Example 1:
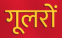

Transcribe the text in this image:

गूलरों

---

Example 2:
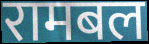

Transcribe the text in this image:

रामबल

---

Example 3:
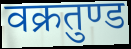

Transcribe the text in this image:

वक्रतुण्ड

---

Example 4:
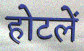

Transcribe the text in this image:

होटलें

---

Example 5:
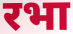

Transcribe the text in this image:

रभा